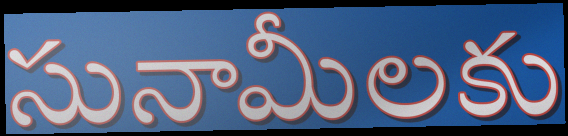
సునామీలకు